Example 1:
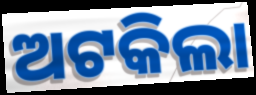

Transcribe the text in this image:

ଅଟକିଲା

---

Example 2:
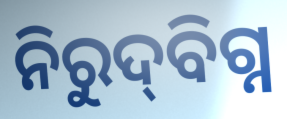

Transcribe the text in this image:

ନିରୁଦ୍‍ବିଗ୍ନ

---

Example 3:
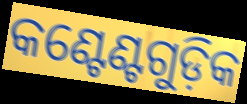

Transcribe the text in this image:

କଣ୍ଟେଣ୍ଟଗୁଡ଼ିକ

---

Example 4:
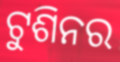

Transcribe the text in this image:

ଟୁଶିନର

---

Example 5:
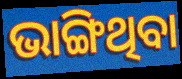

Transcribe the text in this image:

ଭାଙ୍ଗିଥିବା